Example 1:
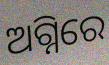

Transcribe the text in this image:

ଅଗ୍ନିରେ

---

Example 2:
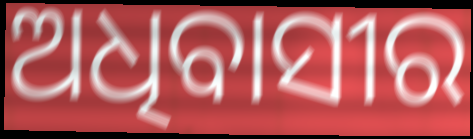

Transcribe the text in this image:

ଅଧିବାସୀର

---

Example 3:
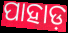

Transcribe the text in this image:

ପାହାଡ଼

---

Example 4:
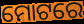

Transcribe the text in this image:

ମୋଟରେ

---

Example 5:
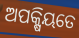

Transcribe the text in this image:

ଅପକ୍ଷିୟତେ